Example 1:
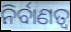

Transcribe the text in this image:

ନିର୍ବାଣତ୍ୱ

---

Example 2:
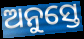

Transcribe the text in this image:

ଅନୁସ୍ତେ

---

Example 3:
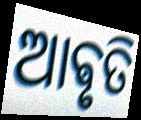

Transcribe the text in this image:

ଆଵୃତି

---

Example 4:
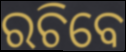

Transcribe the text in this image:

ରଚିବେ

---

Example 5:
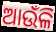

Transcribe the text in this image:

ଆଉଁଳି